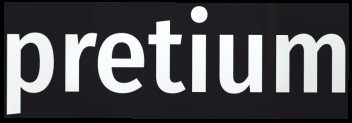
pretium